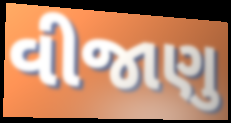
વીજાણુ